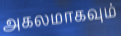
அகலமாகவும்